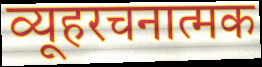
व्यूहरचनात्मक